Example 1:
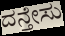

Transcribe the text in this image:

ದನ್ತೇಸು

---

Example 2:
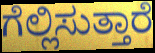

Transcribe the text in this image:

ಗೆಲ್ಲಿಸುತ್ತಾರೆ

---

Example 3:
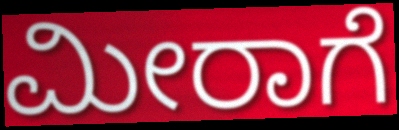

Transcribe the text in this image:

ಮೀರಾಗೆ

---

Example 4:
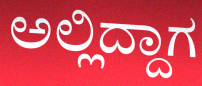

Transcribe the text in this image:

ಅಲ್ಲಿದ್ದಾಗ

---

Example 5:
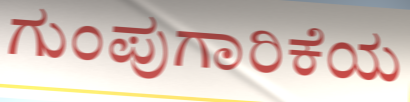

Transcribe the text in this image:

ಗುಂಪುಗಾರಿಕೆಯ